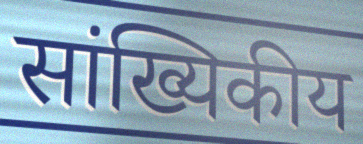
सांख्यिकीय